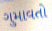
ગુમાવતો